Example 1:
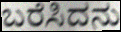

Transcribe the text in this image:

ಬರೆಸಿದನು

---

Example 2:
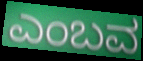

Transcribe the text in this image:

ಎಂಬವ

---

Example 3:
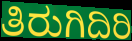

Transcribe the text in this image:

ತಿರುಗಿದಿರಿ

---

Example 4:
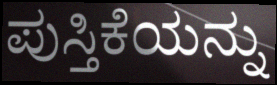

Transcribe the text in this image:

ಪುಸ್ತಿಕೆಯನ್ನು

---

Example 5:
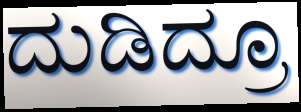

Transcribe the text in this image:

ದುಡಿದ್ರೂ